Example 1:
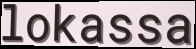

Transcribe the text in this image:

lokassa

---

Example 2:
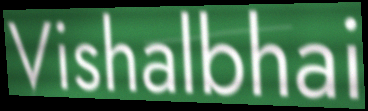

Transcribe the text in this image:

Vishalbhai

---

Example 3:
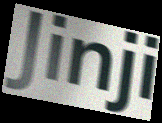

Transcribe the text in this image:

Jinji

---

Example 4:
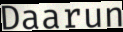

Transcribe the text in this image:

Daarun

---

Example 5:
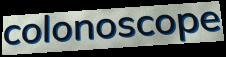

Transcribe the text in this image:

colonoscope